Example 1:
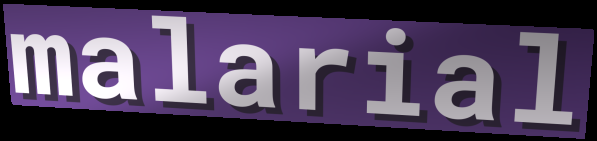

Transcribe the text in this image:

malarial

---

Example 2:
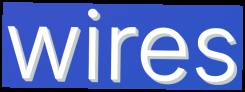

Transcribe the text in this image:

wires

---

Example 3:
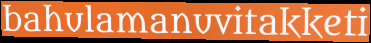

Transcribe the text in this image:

bahulamanuvitakketi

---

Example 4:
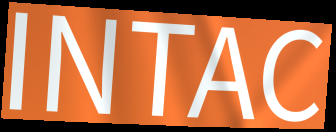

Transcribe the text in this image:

INTAC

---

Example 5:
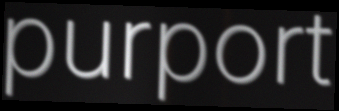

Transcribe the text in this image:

purport